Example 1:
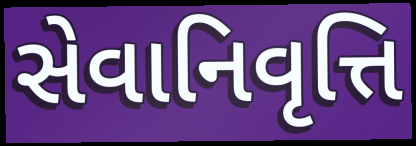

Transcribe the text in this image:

સેવાનિવૃત્તિ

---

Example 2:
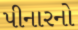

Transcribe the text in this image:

પીનારનો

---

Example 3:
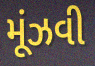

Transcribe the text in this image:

મૂંઝવી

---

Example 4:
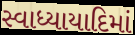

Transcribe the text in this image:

સ્વાધ્યાયાદિમાં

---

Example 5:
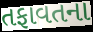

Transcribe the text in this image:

તફાવતના